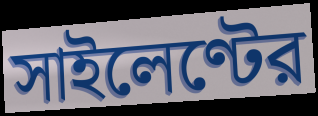
সাইলেণ্টের